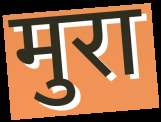
मुरा